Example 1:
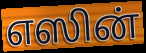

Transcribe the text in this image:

எஸின்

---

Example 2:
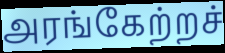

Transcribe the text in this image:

அரங்கேற்றச்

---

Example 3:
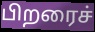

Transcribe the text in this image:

பிறரைச்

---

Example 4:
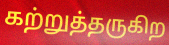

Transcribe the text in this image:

கற்றுத்தருகிற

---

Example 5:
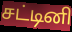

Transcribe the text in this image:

சட்டினி